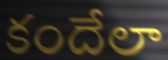
కందేలా